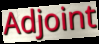
Adjoint